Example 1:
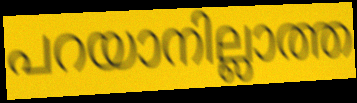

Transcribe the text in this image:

പറയാനില്ലാത്ത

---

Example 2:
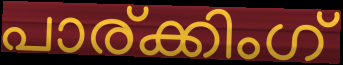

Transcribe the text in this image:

പാര്ക്കിംഗ്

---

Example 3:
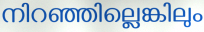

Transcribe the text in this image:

നിറഞ്ഞില്ലെങ്കിലും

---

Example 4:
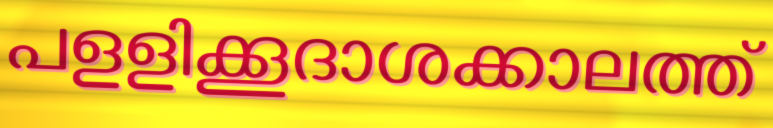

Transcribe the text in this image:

പളളിക്കൂദാശക്കാലത്ത്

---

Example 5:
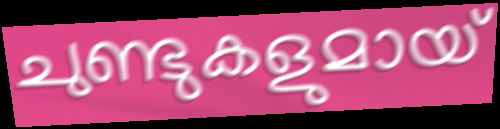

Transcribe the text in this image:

ചുണ്ടുകളുമായ്